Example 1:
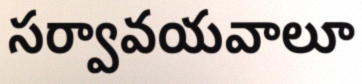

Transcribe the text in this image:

సర్వావయవాలూ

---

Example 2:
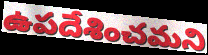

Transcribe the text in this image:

ఉపదేశించమని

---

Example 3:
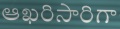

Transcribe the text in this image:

ఆఖరిసారిగా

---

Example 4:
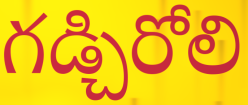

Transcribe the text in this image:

గడ్చిరోలి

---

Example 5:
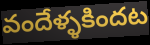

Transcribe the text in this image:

వందేళ్ళకిందట